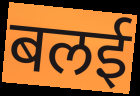
बलई